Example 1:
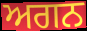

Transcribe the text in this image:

ਅਗਨ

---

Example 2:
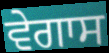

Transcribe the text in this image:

ਵੇਗਾਸ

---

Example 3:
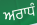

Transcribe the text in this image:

ਅਰਾਧੰ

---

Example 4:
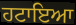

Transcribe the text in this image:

ਹਟਾਇਆ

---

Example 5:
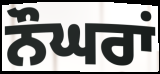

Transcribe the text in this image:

ਨੌਘਰਾਂ